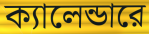
ক্যালেন্ডারে